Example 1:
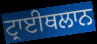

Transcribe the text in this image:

ਟ੍ਰਾਈਥਲਾਨ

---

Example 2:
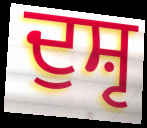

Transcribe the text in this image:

ਦੁਸ਼੍ਟ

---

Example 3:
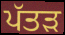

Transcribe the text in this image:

ਪੱਤਡ਼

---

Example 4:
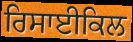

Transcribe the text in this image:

ਰਿਸਾਈਕਿਲ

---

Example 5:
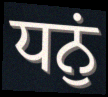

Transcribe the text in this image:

ਧਨੁਂ